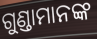
ଗୁଣ୍ଡାମାନଙ୍କ